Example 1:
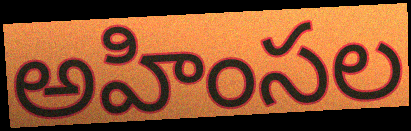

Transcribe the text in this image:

అహింసల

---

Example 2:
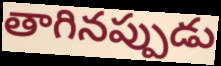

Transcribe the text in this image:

తాగినప్పుడు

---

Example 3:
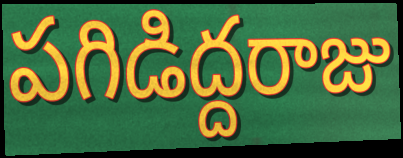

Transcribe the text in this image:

పగిడిద్దరాజు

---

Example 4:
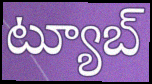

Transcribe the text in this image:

ట్యూబ్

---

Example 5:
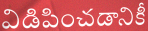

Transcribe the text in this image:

విడిపించడానికీ